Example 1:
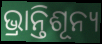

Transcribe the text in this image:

ଭ୍ରାନ୍ତିଶୂନ୍ୟ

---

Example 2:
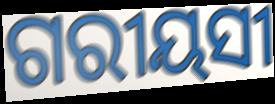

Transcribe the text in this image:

ଗରୀୟସୀ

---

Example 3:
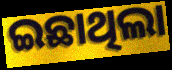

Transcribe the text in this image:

ଇଛାଥିଲା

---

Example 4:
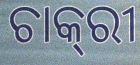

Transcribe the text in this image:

ଚାକ୍‌ରୀ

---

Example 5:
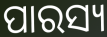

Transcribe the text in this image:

ପାରସ୍ଯ